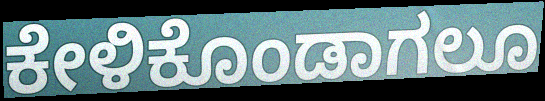
ಕೇಳಿಕೊಂಡಾಗಲೂ